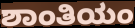
ಶಾಂತಿಯಂ